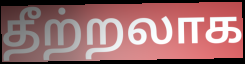
தீற்றலாக